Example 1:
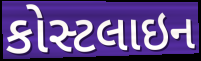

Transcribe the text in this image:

કોસ્ટલાઇન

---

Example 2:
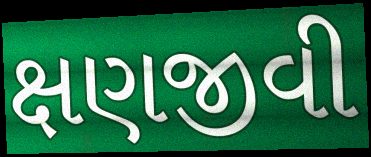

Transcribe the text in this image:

ક્ષણજીવી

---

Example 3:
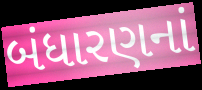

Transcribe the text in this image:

બંધારણનાં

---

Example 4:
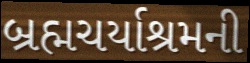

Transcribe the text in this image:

બ્રહ્મચર્યાશ્રમની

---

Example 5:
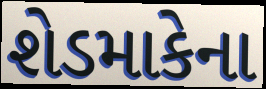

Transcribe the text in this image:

શેડમાકેના